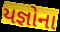
યજ્ઞોના